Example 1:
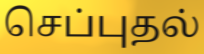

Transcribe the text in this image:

செப்புதல்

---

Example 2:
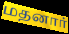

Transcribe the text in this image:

மதனார்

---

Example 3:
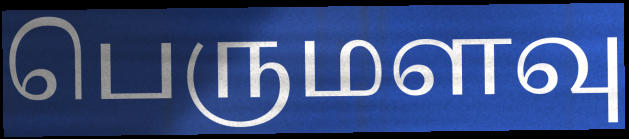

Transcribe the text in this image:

பெருமளவு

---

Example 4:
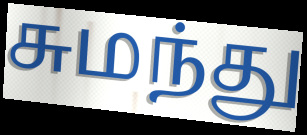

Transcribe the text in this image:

சுமந்து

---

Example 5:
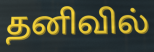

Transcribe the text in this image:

தனிவில்